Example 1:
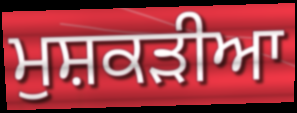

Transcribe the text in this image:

ਮੁਸ਼ਕੜੀਆ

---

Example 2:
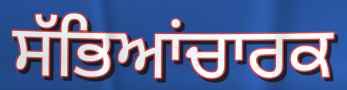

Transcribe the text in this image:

ਸੱਭਿਆਂਚਾਰਕ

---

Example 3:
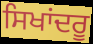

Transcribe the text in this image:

ਸਿਖਾਂਦਰੂ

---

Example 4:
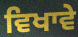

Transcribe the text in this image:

ਵਿਖਾਵੇ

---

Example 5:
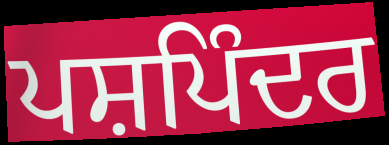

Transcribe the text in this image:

ਪਸ਼ਪਿੰਦਰ